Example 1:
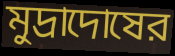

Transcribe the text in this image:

মুদ্রাদোষের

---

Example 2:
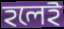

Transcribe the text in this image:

হলেই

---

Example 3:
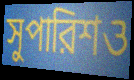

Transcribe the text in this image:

সুপারিশও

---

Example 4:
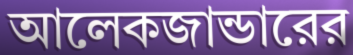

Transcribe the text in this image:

আলেকজান্ডারের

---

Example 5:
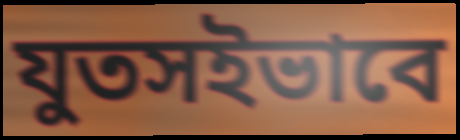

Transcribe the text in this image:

যুতসইভাবে